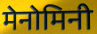
मेनोमिनी